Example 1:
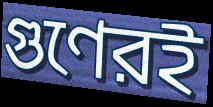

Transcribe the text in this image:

গুণেরই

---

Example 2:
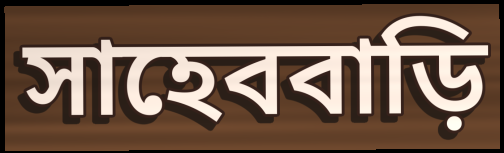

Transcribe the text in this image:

সাহেববাড়ি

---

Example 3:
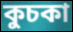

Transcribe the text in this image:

কুচকা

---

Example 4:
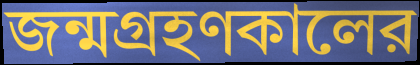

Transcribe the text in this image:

জন্মগ্রহণকালের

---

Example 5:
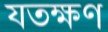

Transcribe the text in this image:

যতক্ষণ